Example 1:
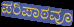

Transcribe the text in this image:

ಪರಿಪಾಠವೂ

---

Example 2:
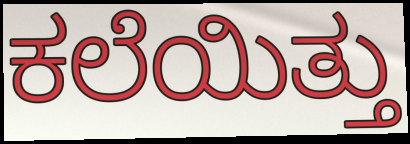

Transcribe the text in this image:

ಕಲೆಯಿತ್ತು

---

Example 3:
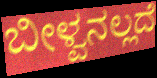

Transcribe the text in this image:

ಬೀಳ್ವನಲ್ಲದೆ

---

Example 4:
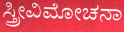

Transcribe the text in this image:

ಸ್ತ್ರೀವಿಮೋಚನಾ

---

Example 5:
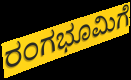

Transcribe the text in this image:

ರಂಗಭೂಮಿಗೆ